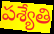
పశ్యేతి